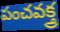
పంచవక్త్ర